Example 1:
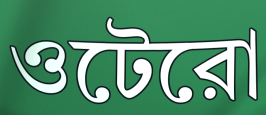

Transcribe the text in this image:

ওটেরো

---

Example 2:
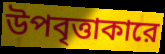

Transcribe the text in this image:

উপবৃত্তাকারে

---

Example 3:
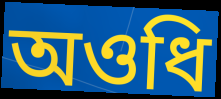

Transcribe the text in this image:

অওধি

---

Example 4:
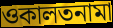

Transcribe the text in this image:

ওকালতনামা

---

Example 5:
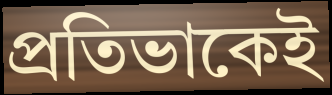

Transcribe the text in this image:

প্রতিভাকেই